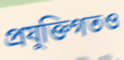
প্রযুক্তিগতও